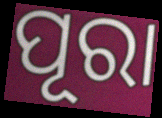
ପୂରା